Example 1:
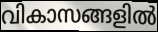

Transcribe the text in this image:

വികാസങ്ങളിൽ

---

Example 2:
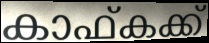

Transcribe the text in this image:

കാഫ്കക്ക്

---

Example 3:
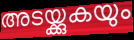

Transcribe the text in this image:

അടയ്ക്കുകയും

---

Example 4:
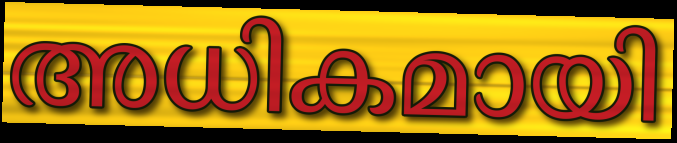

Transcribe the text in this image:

അധികമായി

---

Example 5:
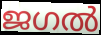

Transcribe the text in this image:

ജഗൽ